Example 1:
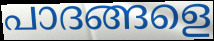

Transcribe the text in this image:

പാദങ്ങളെ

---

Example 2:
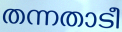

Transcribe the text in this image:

തന്നതാടീ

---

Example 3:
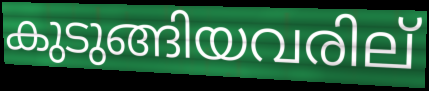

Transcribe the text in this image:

കുടുങ്ങിയവരില്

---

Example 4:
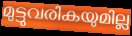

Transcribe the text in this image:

മുട്ടുവരികയുമില്ല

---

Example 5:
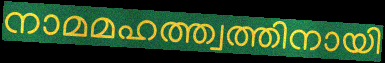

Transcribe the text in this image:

നാമമഹത്ത്വത്തിനായി